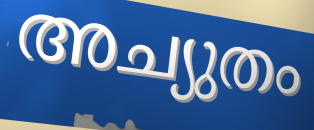
അച്യുതം